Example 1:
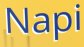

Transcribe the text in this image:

Napi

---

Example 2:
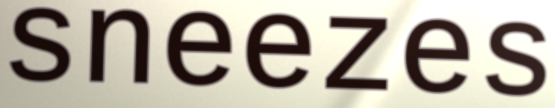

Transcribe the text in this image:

sneezes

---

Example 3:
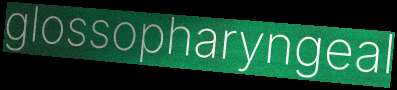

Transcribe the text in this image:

glossopharyngeal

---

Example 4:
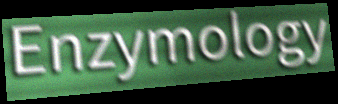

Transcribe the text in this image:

Enzymology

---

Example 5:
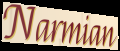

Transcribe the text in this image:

Narmian